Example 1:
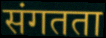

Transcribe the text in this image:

संगतता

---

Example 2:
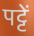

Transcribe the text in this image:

पट्टें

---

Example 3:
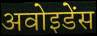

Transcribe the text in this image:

अवोइडेंस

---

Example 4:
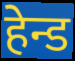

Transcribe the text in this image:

हेन्ड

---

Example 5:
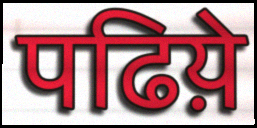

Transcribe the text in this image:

पढिय़े